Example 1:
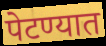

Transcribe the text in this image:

पेटण्यात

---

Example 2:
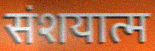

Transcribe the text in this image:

संशयात्म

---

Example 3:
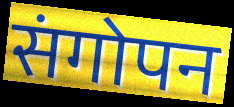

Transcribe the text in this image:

संगोपन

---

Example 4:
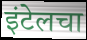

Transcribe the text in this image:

इंटेलचा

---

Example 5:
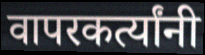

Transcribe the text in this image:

वापरकर्त्यांनी